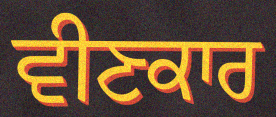
ਵੀਣਕਾਰ